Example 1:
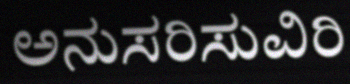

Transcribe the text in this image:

ಅನುಸರಿಸುವಿರಿ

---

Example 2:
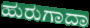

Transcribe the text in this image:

ಹುರುಗಾದಾ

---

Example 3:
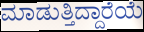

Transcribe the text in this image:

ಮಾಡುತ್ತಿದ್ದಾರೆಯೆ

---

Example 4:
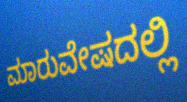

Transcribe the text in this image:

ಮಾರುವೇಷದಲ್ಲಿ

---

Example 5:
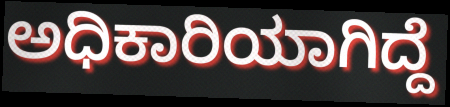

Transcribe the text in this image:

ಅಧಿಕಾರಿಯಾಗಿದ್ದೆ